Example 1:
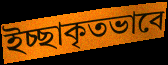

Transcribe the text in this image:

ইচ্ছাকৃতভাবে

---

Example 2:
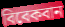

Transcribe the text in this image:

বিবেকবান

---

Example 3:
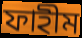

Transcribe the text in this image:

ফাহীম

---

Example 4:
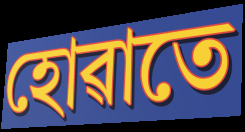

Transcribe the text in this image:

হোৱাতে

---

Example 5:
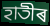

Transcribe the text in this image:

হাতীৰ